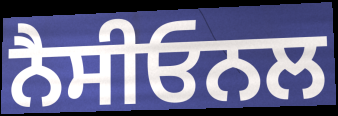
ਨੈਸੀਓਨਲ